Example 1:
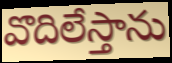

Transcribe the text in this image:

వొదిలేస్తాను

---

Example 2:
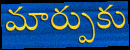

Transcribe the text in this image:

మార్పుకు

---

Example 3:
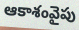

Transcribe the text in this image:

ఆకాశంవైపు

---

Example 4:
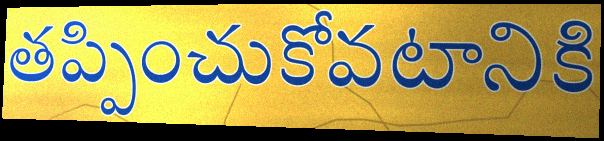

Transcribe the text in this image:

తప్పించుకోవటానికి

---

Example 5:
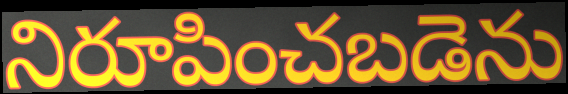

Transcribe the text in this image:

నిరూపించబడెను